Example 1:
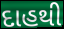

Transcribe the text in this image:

દાહથી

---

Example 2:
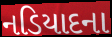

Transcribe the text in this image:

નડિયાદના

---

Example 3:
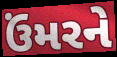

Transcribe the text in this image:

ઉંમરને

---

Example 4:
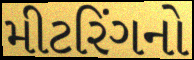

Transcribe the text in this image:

મીટરિંગનો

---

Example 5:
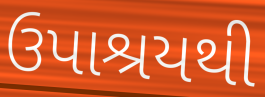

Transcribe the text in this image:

ઉપાશ્રયથી